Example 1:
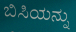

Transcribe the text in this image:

ಬಿಸಿಯನ್ನು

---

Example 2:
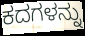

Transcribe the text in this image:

ಕದಗಳನ್ನು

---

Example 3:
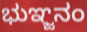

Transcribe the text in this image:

ಭುಞ್ಜನಂ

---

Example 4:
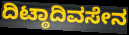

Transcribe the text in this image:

ದಿಟ್ಠಾದಿವಸೇನ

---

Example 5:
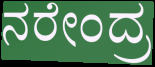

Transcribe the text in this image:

ನರೇಂದ್ರ